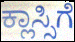
ಕ್ಲಾಸ್ಸಿಗೆ